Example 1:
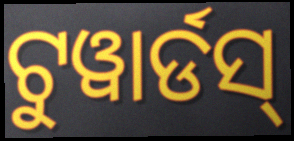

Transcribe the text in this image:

ଟୁୱାର୍ଡସ୍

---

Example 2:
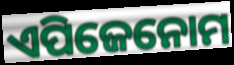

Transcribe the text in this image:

ଏପିଜେନୋମ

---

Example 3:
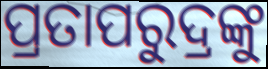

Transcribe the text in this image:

ପ୍ରତାପରୁଦ୍ରଙ୍କୁ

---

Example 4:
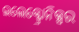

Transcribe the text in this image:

ଇଲେକ୍ଟ୍ରୋନିକ୍ସର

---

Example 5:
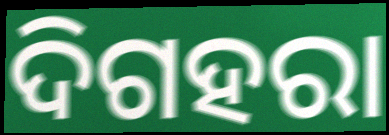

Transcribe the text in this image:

ଦିଗହରା